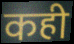
कही